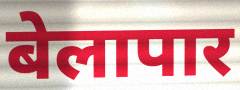
बेलापार